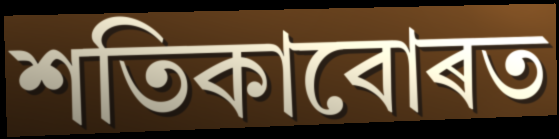
শতিকাবোৰত